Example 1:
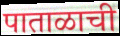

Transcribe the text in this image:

पाताळाची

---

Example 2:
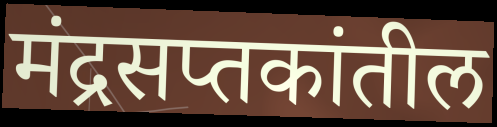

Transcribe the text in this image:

मंद्रसप्तकांतील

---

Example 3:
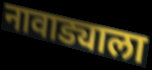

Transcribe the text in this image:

नावाड्याला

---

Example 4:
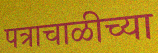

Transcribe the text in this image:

पत्राचाळीच्या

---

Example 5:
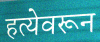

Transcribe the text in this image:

हत्येवरून